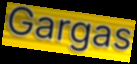
Gargas